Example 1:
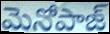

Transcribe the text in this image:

మెనోపాజ్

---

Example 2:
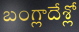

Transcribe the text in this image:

బంగ్లాదేశ్లో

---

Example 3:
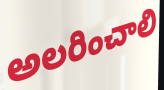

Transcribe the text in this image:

అలరించాలి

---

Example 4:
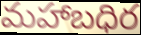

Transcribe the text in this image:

మహాబధిర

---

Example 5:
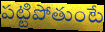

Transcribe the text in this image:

పట్టిపోతుంటే